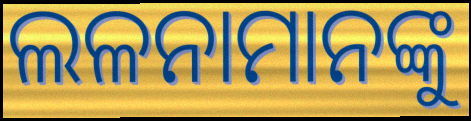
ଲଳନାମାନଙ୍କୁ